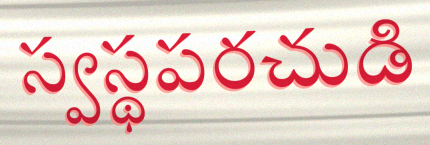
స్వస్థపరచుడి